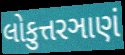
લોકુત્તરઞાણં